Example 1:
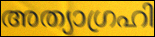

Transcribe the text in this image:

അത്യാഗ്രഹി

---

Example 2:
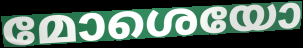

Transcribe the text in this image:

മോശെയോ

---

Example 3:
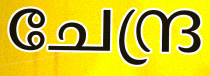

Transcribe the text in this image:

ചേന്ദ്ര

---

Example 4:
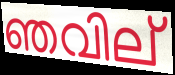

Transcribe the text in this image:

ഞവില്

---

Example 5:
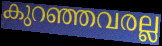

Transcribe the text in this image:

കുറഞ്ഞവരല്ല